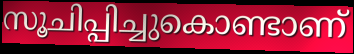
സൂചിപ്പിച്ചുകൊണ്ടാണ്